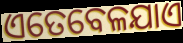
ଏତେବେଳଯାଏ